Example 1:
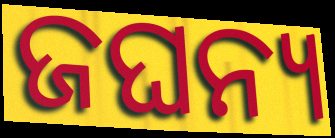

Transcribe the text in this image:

ଜଘନ୍ଯ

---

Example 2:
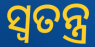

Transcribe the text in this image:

ସ୍ୱତନ୍ତ୍ର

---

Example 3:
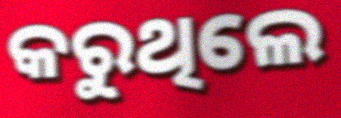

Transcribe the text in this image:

କରୁଥିଲେ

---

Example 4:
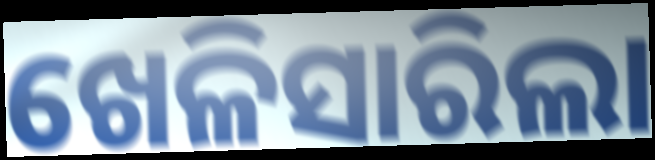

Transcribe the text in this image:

ଖେଳିସାରିଲା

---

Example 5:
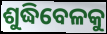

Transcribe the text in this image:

ଶୁଦ୍ଧିବେଳକୁ